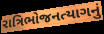
રાત્રિભોજનત્યાગનું